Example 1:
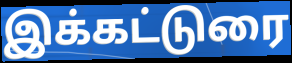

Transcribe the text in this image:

இக்கட்டுரை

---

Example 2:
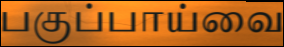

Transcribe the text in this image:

பகுப்பாய்வை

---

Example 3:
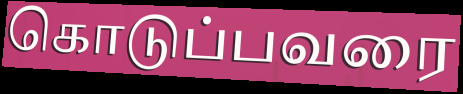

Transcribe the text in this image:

கொடுப்பவரை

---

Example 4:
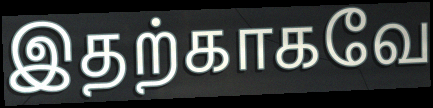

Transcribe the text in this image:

இதற்காகவே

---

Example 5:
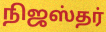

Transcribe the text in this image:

நிஜஸ்தர்